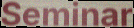
Seminar